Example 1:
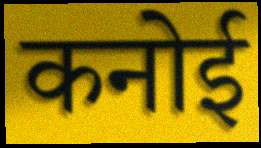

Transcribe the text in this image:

कनोई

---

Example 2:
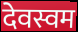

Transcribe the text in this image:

देवस्वम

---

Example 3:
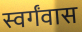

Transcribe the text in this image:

स्वर्गंवास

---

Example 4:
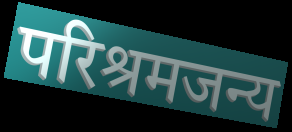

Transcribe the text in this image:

परिश्रमजन्य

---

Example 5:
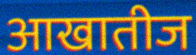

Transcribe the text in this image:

आखातीज